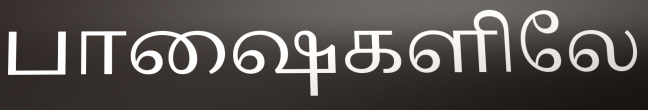
பாஷைகளிலே